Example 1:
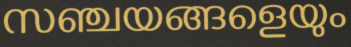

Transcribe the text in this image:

സഞ്ചയങ്ങളെയും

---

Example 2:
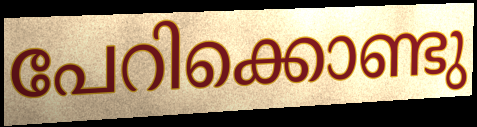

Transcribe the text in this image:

പേറിക്കൊണ്ടു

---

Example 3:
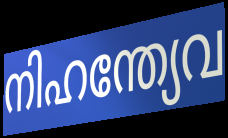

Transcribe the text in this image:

നിഹന്ത്യേവ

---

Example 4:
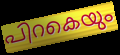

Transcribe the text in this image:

പിറകെയും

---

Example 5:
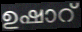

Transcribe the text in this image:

ഉഷാറ്